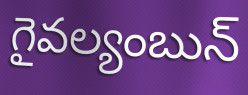
గైవల్యంబున్